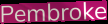
Pembroke